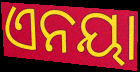
ଏନୟା